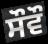
ਸੌਵੌ